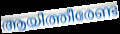
ആയിത്തീരേണ്ട